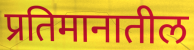
प्रतिमानातील